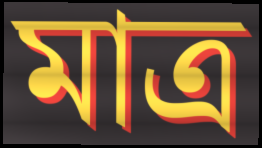
মাত্র